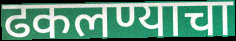
ढकलण्याचा